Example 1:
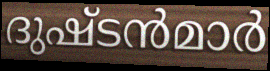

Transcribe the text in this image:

ദുഷ്ടൻമാർ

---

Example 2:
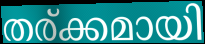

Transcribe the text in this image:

തര്ക്കമായി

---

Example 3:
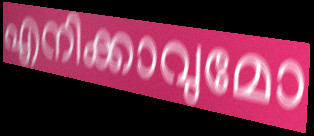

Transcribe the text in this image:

എനിക്കാവുമോ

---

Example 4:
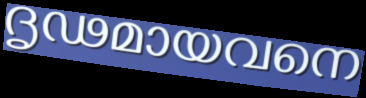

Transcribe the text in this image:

ദൃഢമായവനെ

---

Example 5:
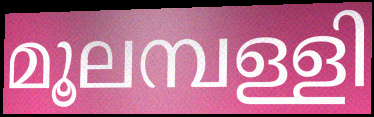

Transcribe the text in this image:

മൂലമ്പള്ളി